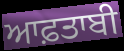
ਆਫ਼ਤਾਬੀ